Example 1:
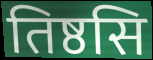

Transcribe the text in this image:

तिष्ठसि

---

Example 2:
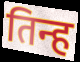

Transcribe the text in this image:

तिन्ह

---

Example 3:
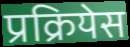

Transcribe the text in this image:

प्रक्रियेस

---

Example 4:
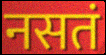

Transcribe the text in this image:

नसतं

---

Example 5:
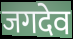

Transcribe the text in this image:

जगदेव